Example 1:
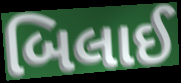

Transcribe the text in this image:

બિલાઈ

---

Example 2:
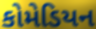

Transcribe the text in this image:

કોમેડિયન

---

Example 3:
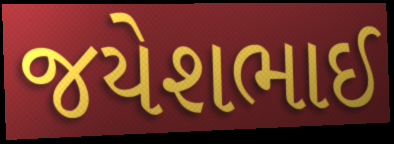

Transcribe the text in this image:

જયેશભાઈ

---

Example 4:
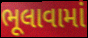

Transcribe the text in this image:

ભૂલાવામાં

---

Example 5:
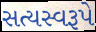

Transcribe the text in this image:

સત્યસ્વરૂપે